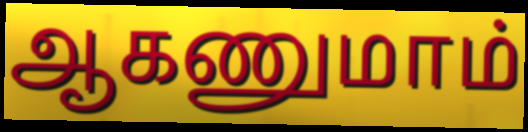
ஆகணுமாம்